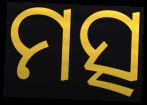
ମତ୍ସ